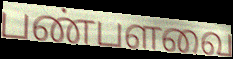
பண்பளவை